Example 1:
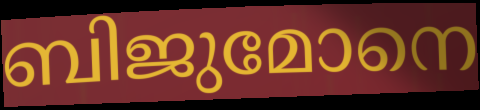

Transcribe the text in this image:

ബിജുമോനെ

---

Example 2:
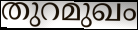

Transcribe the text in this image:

തുറമുഖം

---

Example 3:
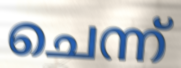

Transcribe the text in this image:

ചെന്ന്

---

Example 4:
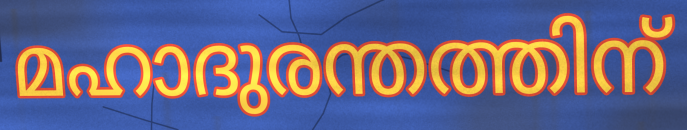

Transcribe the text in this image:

മഹാദുരന്തത്തിന്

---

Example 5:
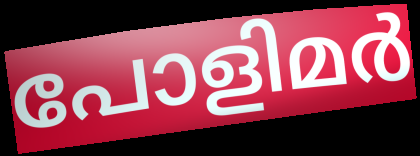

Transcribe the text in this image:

പോളിമർ